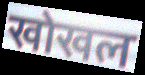
खोखल